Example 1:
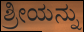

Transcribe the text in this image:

ಶ್ರೀಯನ್ನು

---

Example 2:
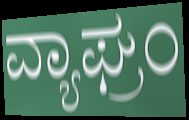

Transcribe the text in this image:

ವ್ಯಾಘ್ರಂ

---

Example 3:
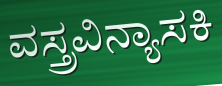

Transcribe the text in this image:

ವಸ್ತ್ರವಿನ್ಯಾಸಕಿ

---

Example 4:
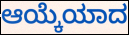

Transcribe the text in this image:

ಆಯ್ಕೆಯಾದ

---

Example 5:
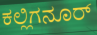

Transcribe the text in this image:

ಕಲ್ಲಿಗನೂರ್